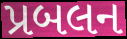
પ્રબલન